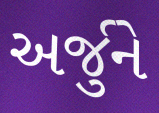
અર્જુને